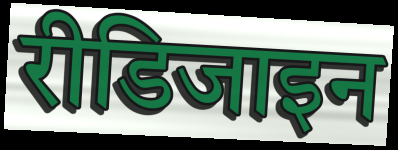
रीडिजाइन